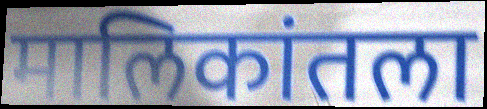
मालिकांतला